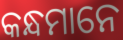
କନ୍ଧମାନେ